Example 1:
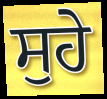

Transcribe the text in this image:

ਸੁਹੇ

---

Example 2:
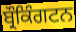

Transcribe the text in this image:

ਬ੍ਰੌਕਿੰਗਟਨ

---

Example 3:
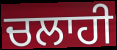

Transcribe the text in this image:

ਚਲਾਹੀ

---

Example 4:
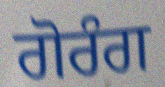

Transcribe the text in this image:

ਗੋਰੰਗ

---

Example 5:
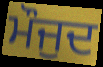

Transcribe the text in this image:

ਮੌਜੁਦ